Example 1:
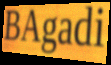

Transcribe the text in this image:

BAgadi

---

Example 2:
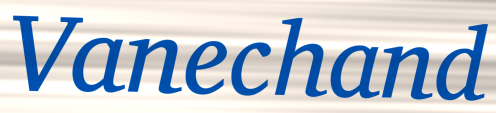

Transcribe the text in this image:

Vanechand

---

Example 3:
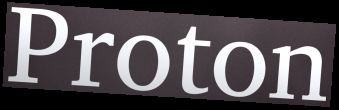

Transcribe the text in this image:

Proton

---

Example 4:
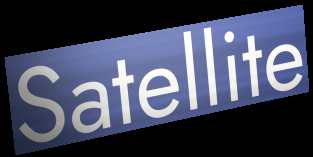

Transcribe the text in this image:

Satellite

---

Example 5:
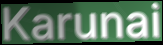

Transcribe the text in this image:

Karunai